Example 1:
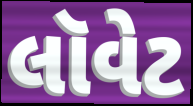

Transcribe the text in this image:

લૉવેટ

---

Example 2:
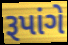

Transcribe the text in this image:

રૂપાંગે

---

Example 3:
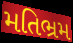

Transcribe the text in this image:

મતિભ્રમ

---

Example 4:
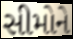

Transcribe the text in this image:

સીમોને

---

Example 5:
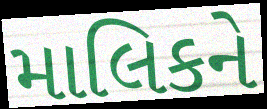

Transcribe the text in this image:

માલિકને